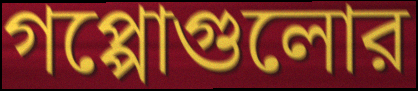
গপ্পোগুলোর